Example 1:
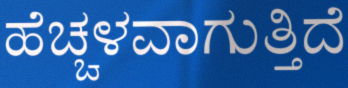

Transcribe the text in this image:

ಹೆಚ್ಚಳವಾಗುತ್ತಿದೆ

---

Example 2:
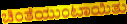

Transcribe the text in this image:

ಚಿಂತೆಯುಂಟಾಯಿತು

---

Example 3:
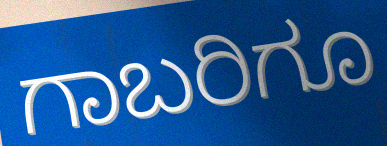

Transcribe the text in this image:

ಗಾಬರಿಗೂ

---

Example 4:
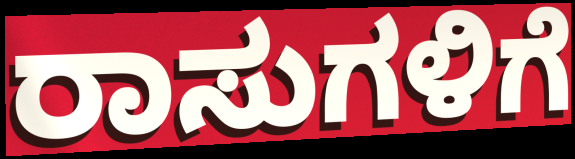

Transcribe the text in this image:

ರಾಸುಗಳಿಗೆ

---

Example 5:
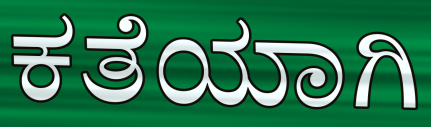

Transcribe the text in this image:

ಕತೆಯಾಗಿ